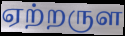
ஏற்றருள